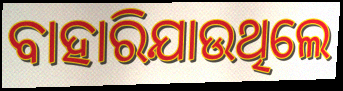
ବାହାରିଯାଉଥିଲେ